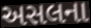
અસલના